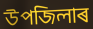
উপজিলাৰ